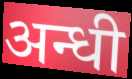
अन्धी